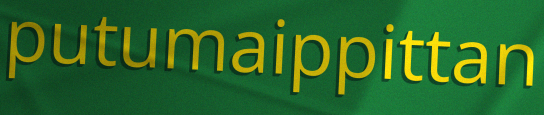
putumaippittan